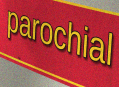
parochial